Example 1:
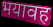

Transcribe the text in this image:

भयावह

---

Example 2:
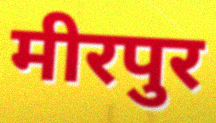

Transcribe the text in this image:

मीरपुर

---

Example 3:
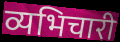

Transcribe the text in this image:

व्यभिचारी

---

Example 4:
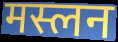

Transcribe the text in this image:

मस्लन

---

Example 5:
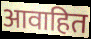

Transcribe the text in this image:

आवाहित